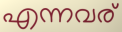
എന്നവര്